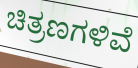
ಚಿತ್ರಣಗಳಿವೆ